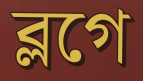
ব্লগে